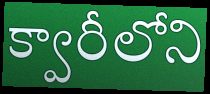
క్వారీలోని